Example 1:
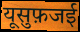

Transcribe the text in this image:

यूसुफ़जई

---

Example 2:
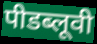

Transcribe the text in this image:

पीडब्लूवी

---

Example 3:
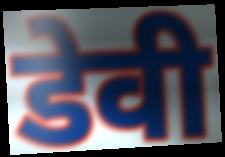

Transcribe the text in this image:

डेवी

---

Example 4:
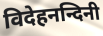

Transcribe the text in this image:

विदेहनन्दिनी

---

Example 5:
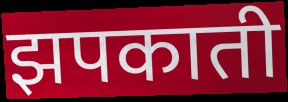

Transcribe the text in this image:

झपकाती